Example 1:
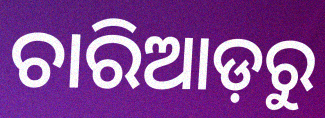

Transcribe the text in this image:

ଚାରିଆଡ଼ରୁ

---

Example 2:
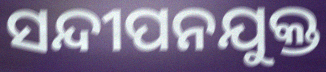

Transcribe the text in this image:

ସନ୍ଦୀପନଯୁକ୍ତ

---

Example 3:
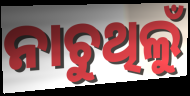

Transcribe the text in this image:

ନାଚୁଥିଲୁଁ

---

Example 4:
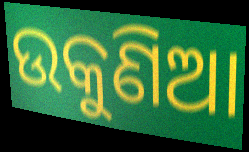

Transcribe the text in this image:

ଉକୁଣିଆ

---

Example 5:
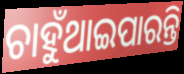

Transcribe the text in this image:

ଚାହୁଁଥାଇପାରନ୍ତି